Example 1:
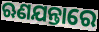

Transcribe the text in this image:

ଋଣଯନ୍ତାରେ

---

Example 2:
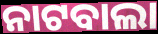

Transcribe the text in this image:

ନାଟବାଲା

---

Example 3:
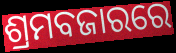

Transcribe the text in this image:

ଶ୍ରମବଜାରରେ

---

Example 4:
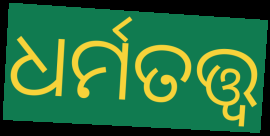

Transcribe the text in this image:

ଧର୍ମତତ୍ତ୍ଵ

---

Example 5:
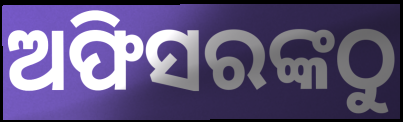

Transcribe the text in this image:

ଅଫିସରଙ୍କଠୁ